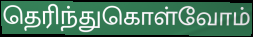
தெரிந்துகொள்வோம்